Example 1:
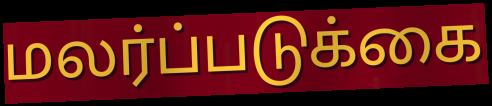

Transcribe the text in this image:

மலர்ப்படுக்கை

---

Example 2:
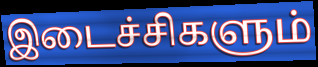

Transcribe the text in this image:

இடைச்சிகளும்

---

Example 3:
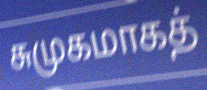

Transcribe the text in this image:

சுமுகமாகத்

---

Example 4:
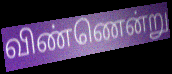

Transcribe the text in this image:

விண்ணென்று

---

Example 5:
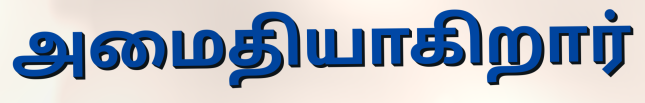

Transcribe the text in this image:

அமைதியாகிறார்